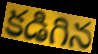
కడిగిన